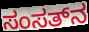
ಸಂಸತ್‌ನ